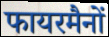
फायरमैनों